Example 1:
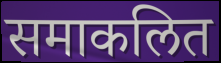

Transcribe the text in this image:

समाकलित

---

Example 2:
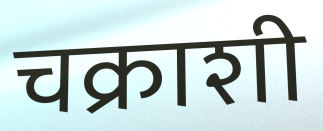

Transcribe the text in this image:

चक्राशी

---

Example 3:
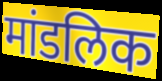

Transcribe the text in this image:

मांडलिक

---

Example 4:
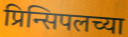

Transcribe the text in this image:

प्रिन्सिपलच्या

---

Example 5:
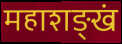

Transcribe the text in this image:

महाशङ्खं